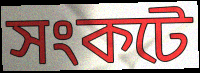
সংকটে